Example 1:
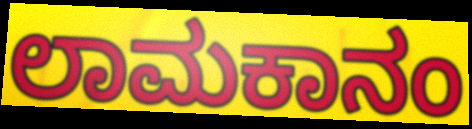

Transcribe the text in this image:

ಲಾಮಕಾನಂ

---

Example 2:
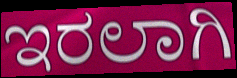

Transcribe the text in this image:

ಇರಲಾಗಿ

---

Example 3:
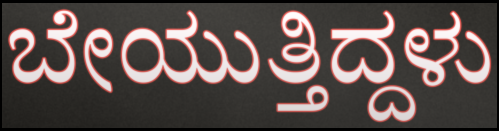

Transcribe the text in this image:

ಬೇಯುತ್ತಿದ್ದಳು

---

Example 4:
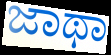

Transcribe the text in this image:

ಜಾಥಾ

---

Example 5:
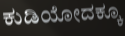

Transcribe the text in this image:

ಕುಡಿಯೋದಕ್ಕೂ